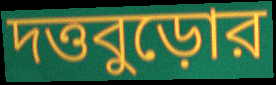
দত্তবুড়োর